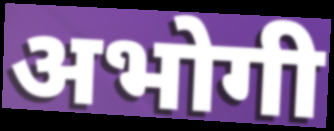
अभोगी